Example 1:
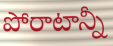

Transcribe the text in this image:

పోరాటాన్నీ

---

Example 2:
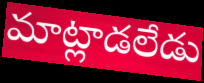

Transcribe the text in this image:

మాట్లాడలేడు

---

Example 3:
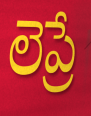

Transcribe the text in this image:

లెప్రే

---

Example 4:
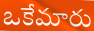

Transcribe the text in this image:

ఒకేమారు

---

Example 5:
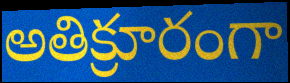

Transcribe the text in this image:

అతిక్రూరంగా